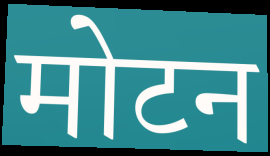
मोटन